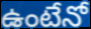
ఉంటేనో